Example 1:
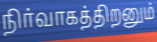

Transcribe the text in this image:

நிர்வாகத்திறனும்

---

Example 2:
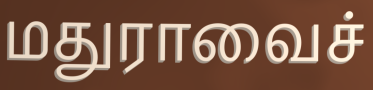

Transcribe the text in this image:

மதுராவைச்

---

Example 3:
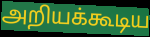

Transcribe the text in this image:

அறியக்கூடிய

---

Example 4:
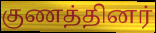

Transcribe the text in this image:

குணத்தினர்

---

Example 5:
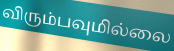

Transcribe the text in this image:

விரும்பவுமில்லை